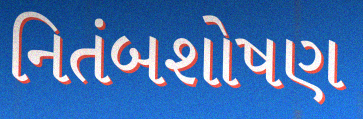
નિતંબશોષણ